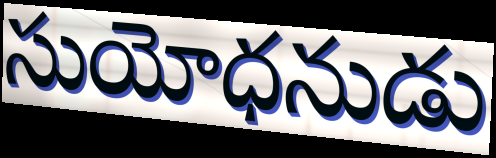
సుయోధనుడు